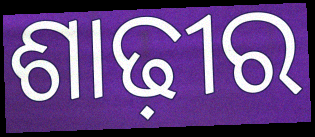
ଶାଢ଼ୀର